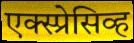
एक्स्प्रेसिव्ह